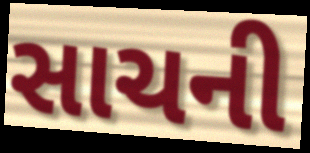
સાચની